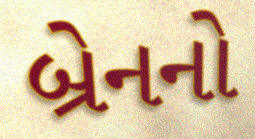
બ્રેનનો